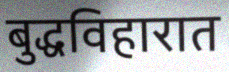
बुद्धविहारात